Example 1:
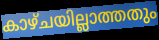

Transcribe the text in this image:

കാഴ്ചയില്ലാത്തതും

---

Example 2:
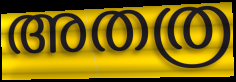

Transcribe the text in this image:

അതത്ര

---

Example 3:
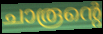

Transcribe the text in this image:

ചാരൂന്റെ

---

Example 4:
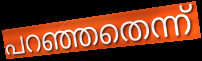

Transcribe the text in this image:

പറഞ്ഞതെന്ന്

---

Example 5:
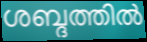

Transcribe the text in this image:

ശബ്ദത്തിൽ